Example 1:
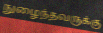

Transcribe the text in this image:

நுழைந்தவருக்கு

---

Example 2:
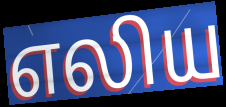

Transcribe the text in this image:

எலிய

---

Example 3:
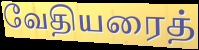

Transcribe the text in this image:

வேதியரைத்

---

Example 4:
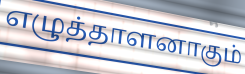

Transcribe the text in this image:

எழுத்தாளனாகும்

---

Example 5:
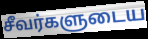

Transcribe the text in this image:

சீவர்களுடைய